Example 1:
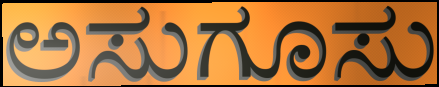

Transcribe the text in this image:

ಅಸುಗೂಸು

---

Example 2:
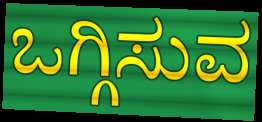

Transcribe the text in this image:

ಒಗ್ಗಿಸುವ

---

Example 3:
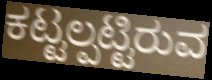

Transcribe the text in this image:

ಕಟ್ಟಲ್ಪಟ್ಟಿರುವ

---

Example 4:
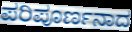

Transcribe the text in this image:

ಪರಿಪೂರ್ಣನಾದ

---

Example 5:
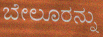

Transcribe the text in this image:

ಬೇಲೂರನ್ನು